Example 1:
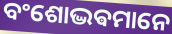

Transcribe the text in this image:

ବଂଶୋଦ୍ଭଵମାନେ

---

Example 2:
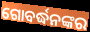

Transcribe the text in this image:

ଗୋବର୍ଦ୍ଧନଙ୍କର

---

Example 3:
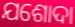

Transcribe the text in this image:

ଯଶୋଦା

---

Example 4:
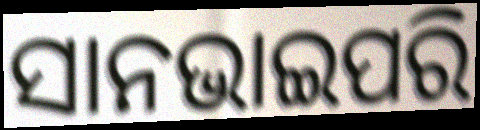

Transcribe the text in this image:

ସାନଭାଇପରି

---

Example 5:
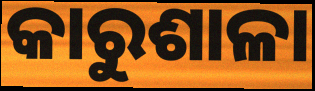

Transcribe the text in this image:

କାରୁଶାଳା